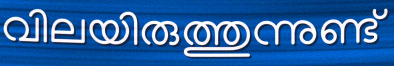
വിലയിരുത്തുന്നുണ്ട്